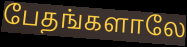
பேதங்களாலே